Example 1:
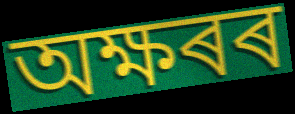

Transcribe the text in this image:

অক্ষৰৰ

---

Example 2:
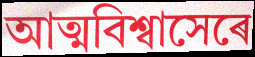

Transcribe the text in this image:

আত্মবিশ্বাসেৰে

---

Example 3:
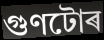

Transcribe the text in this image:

গুণটোৰ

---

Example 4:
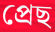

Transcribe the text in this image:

প্ৰেছ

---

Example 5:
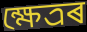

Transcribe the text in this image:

ক্ষেত্ৰৰ